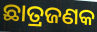
ଛାତ୍ରଜଣକ